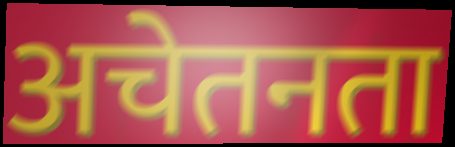
अचेतनता